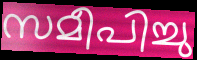
സമീപിച്ചു